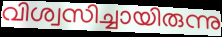
വിശ്വസിച്ചായിരുന്നു